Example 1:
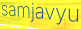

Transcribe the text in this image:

samjavyu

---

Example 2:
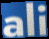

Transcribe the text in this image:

ali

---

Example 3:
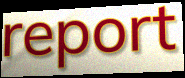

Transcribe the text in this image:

report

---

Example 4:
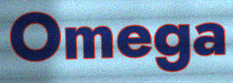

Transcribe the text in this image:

Omega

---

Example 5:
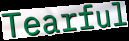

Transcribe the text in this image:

Tearful